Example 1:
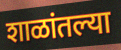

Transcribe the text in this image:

शाळांतल्या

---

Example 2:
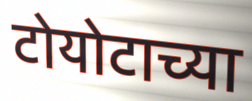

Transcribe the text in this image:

टोयोटाच्या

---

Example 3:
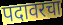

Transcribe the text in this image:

पदावरचा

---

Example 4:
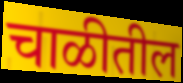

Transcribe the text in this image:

चाळीतील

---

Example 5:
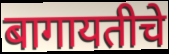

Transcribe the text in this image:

बागायतीचे